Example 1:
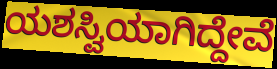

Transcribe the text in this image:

ಯಶಸ್ವಿಯಾಗಿದ್ದೇವೆ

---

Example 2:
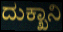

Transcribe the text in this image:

ದುಕ್ಖಾನಿ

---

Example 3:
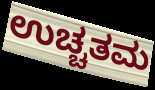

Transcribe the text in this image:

ಉಚ್ಚತಮ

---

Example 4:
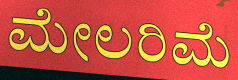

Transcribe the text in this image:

ಮೇಲರಿಮೆ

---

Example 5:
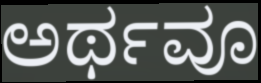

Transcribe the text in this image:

ಅರ್ಥವೂ